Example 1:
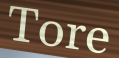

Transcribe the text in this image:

Tore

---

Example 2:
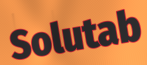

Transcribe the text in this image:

Solutab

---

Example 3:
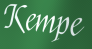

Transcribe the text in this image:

Kempe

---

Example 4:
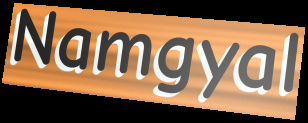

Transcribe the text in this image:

Namgyal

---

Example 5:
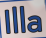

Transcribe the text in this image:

Illa